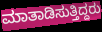
ಮಾತಾಡಿಸುತ್ತಿದ್ದರು